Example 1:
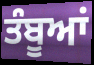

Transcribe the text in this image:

ਤੰਬੂਆਂ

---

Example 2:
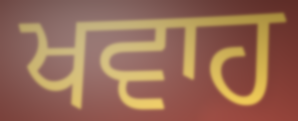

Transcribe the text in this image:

ਖਵਾਹ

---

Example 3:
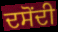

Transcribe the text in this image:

ਦਸੋਂਦੀ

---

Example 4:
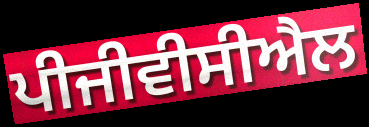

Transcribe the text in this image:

ਪੀਜੀਵੀਸੀਐਲ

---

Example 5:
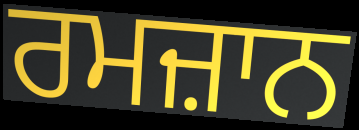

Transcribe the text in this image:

ਰਮਜ਼ਾਨ